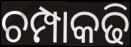
ଚମ୍ପାକଢି